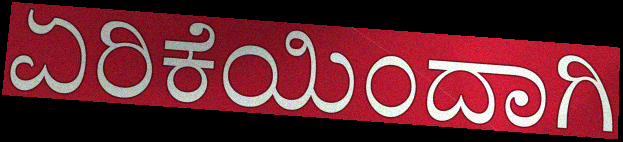
ಏರಿಕೆಯಿಂದಾಗಿ